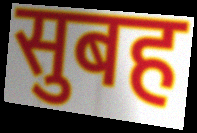
सुबह